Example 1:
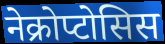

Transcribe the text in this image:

नेक्रोप्टोसिस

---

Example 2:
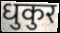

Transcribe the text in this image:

धुकुर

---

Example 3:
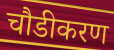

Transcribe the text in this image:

चौडीकरण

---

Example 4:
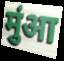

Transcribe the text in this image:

मुंआ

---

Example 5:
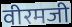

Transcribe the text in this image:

वीरमजी